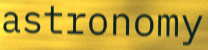
astronomy